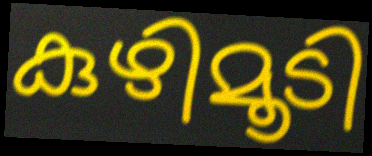
കുഴിമൂടി